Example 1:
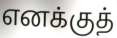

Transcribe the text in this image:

எனக்குத்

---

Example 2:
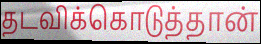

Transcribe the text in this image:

தடவிக்கொடுத்தான்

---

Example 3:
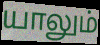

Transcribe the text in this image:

யாலும்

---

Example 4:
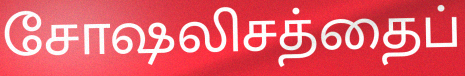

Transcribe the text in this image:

சோஷலிசத்தைப்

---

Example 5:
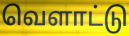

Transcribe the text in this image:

வெளாட்டு